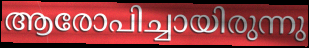
ആരോപിച്ചായിരുന്നു